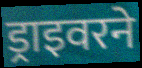
ड्राइवरने